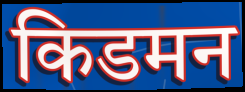
किडमन